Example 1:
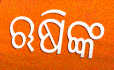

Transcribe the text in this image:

ଋଷିଙ୍କ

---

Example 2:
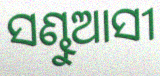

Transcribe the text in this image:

ସଣ୍ଢୁଆସୀ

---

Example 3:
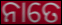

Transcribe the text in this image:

ନାତେ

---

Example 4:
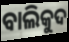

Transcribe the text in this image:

ବାଲିକୁଦ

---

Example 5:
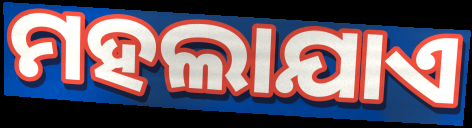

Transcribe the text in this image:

ମହଲାଯାଏ